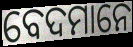
ବେଦମାନେ